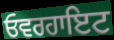
ਓਵਰਹਾਇਟ